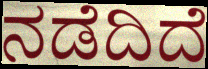
ನಡೆದಿದೆ